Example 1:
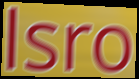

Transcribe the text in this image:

Isro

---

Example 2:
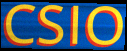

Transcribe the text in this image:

CSIO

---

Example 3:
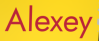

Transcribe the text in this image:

Alexey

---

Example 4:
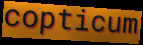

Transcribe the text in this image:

copticum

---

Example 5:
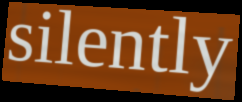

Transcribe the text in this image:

silently